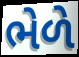
ભેળે